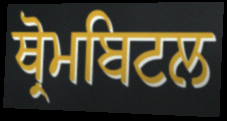
ਥ੍ਰੋਮਬਿਟਲ